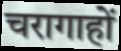
चरागाहों